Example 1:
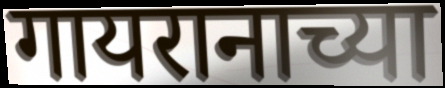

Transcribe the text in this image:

गायरानाच्या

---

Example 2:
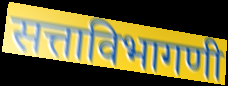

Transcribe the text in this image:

सत्ताविभागणी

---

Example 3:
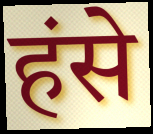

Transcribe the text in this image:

हंसे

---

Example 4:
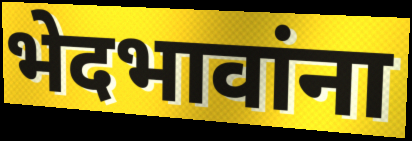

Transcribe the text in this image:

भेदभावांना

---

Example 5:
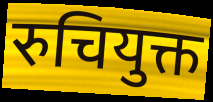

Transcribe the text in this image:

रुचियुक्त